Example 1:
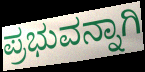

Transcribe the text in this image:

ಪ್ರಭುವನ್ನಾಗಿ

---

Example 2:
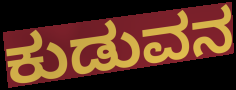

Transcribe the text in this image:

ಕುಡುವನ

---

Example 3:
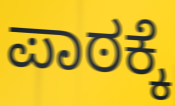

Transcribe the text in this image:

ಪಾಠಕ್ಕೆ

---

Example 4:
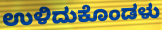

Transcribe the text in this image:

ಉಳಿದುಕೊಂಡಳು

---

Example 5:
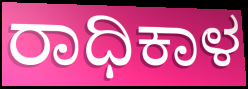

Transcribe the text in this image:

ರಾಧಿಕಾಳ